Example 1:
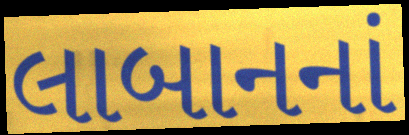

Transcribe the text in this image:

લાબાનનાં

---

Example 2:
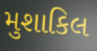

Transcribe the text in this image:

મુશાકિલ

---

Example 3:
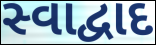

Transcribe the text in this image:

સ્વાદ્વાદ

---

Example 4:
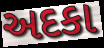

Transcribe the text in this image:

અદકા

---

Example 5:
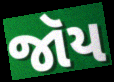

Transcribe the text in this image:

જૉય